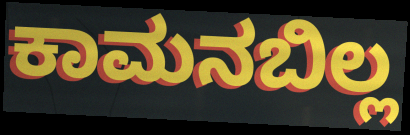
ಕಾಮನಬಿಲ್ಲ